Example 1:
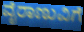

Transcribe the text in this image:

ವೈರಾಣುವಿಗೆ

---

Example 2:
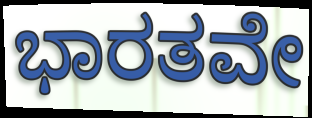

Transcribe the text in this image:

ಭಾರತವೇ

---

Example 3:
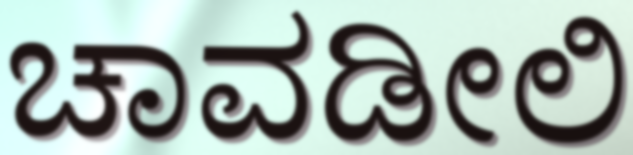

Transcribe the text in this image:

ಚಾವಡೀಲಿ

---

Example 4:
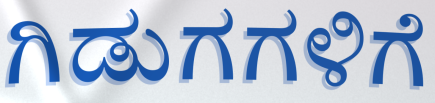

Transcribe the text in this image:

ಗಿಡುಗಗಳಿಗೆ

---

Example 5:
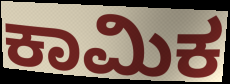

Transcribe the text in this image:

ಕಾಮಿಕ